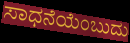
ಸಾಧನೆಯೆಂಬುದು